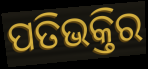
ପତିଭକ୍ତିର